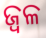
ଜ୍ୱଳ